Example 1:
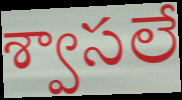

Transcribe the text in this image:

శ్వాసలే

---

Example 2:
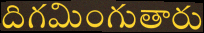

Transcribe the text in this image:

దిగమింగుతారు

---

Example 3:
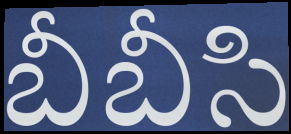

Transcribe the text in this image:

బీబీసి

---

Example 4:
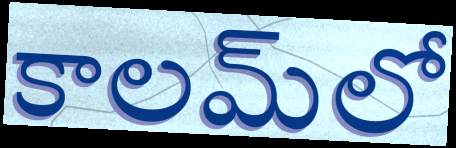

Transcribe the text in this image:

కాలమ్‍లో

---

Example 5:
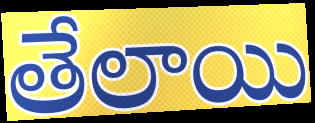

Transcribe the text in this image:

తేలాయి